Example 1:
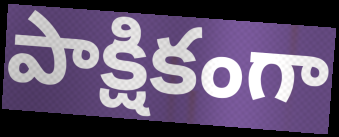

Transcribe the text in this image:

పాక్షికంగా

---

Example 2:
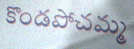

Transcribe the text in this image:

కొండపోచమ్మ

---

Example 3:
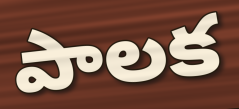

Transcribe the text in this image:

పాలక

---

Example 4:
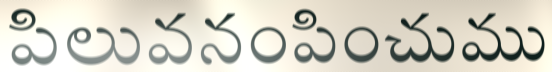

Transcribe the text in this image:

పిలువనంపించుము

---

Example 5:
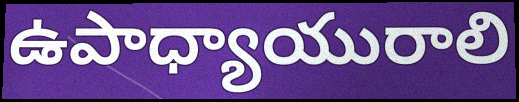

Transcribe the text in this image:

ఉపాధ్యాయురాలి